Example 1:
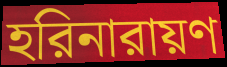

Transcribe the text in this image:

হরিনারায়ণ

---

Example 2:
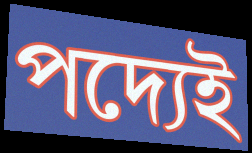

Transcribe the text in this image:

পদ্যেই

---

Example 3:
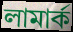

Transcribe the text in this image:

লামার্ক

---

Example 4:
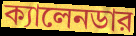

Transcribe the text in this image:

ক্যালেনডার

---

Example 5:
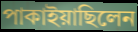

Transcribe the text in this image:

পাকাইয়াছিলেন